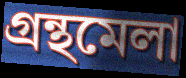
গ্ৰন্থমেলা